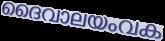
ദൈവാലയംവക